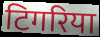
टिगरिया